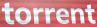
torrent